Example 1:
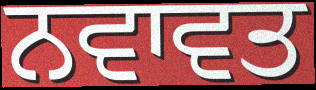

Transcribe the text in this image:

ਨਵਾਵਤ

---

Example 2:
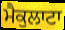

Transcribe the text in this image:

ਮੈਕੁਲਾਟਾ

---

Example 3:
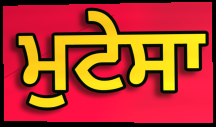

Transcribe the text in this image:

ਮੁਟੇਸਾ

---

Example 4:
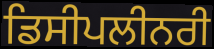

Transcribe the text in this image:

ਡਿਸੀਪਲੀਨਰੀ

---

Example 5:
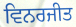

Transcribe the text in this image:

ਵਿਨਰਜੀਤ